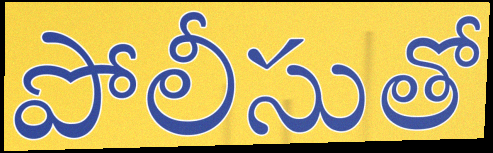
పోలీసుతో